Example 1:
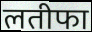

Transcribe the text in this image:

लतीफा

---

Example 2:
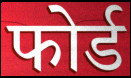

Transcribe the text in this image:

फोर्ड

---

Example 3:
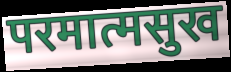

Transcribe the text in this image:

परमात्मसुख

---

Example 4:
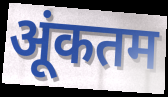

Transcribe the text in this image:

अूंकतम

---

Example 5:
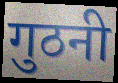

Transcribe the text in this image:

गुठनी